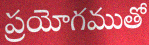
ప్రయోగముతో